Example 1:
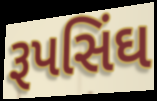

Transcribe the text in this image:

રૂપસિંઘ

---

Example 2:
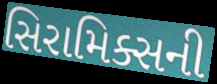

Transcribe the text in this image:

સિરામિક્સની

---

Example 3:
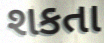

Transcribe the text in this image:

શકતા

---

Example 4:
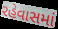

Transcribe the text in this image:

રહેવાસમાં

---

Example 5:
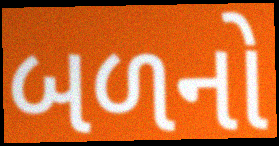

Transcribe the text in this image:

બળનો